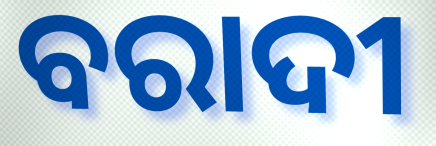
ବରାଦୀ